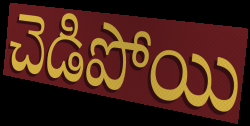
చెడిపోయి